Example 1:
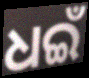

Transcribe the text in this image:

ଧଇଁ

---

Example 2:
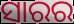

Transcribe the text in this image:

ସାରର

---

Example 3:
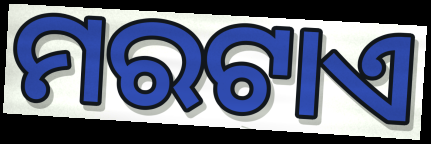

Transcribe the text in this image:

ମରଟାଏ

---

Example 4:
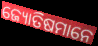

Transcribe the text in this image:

ଜ୍ୟୋତିଷମାନେ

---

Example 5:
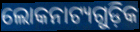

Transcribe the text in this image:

ଲୋକନାଟ୍ୟଗୁଡ଼ିକ